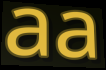
aa